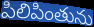
పిలిపింతును